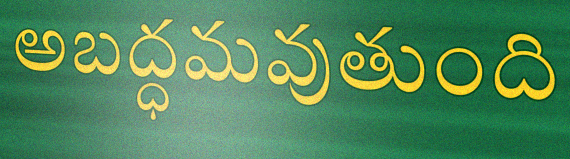
అబద్ధమవుతుంది